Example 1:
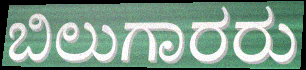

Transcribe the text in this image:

ಬಿಲುಗಾರರು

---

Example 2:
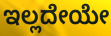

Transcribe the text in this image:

ಇಲ್ಲದೇಯೇ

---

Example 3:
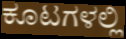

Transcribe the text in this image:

ಕೂಟಗಳಲ್ಲಿ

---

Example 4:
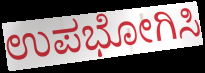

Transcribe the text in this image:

ಉಪಭೋಗಿಸಿ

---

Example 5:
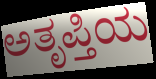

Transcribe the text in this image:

ಅತೃಪ್ತಿಯ